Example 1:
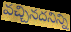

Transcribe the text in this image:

వచ్చినదనిన్ని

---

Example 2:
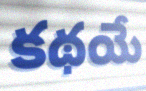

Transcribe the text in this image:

కథయే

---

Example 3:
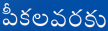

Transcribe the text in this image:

పీకలవరకు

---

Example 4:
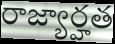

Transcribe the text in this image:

రాజ్యార్హత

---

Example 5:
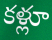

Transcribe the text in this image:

కళ్లూ